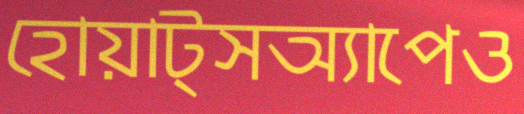
হোয়াট্‌সঅ্যাপেও